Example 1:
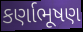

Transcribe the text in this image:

કર્ણાભૂષણ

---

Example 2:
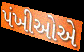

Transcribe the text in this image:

પંખીઓએ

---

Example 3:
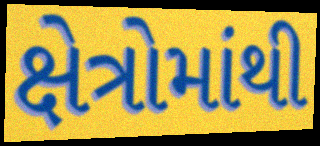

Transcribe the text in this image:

ક્ષેત્રોમાંથી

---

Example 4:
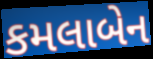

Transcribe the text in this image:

કમલાબેન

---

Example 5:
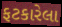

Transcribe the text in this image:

ફટકારેલા